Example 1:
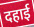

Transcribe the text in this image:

दहाई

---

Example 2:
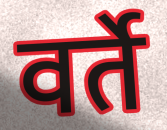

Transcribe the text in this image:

वर्ते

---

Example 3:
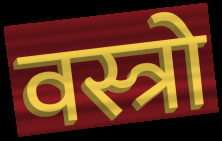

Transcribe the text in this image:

वस्त्रो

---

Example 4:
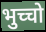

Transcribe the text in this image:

भुच्चो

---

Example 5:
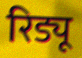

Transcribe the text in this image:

रिड्यू